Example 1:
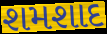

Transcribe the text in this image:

શમશાદ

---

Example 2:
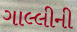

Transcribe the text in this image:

ગાલ્લીની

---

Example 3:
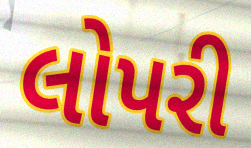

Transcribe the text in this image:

લોપરી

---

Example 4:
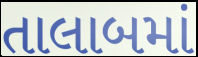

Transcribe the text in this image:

તાલાબમાં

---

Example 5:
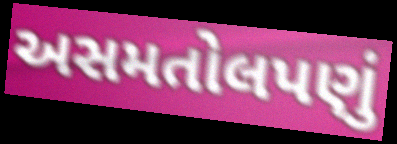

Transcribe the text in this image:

અસમતોલપણું